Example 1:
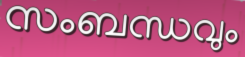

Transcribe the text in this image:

സംബന്ധവും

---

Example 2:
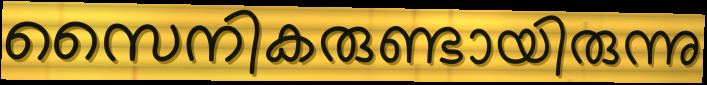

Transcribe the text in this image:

സൈനികരുണ്ടായിരുന്നു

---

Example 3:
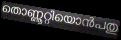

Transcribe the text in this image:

തൊണ്ണൂറ്റിയൊൻപതു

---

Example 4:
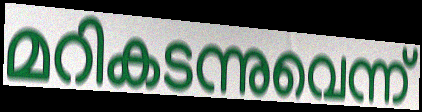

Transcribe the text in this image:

മറികടന്നുവെന്ന്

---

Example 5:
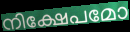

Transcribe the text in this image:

നിക്ഷേപമോ